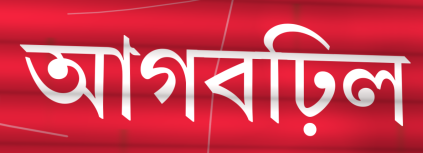
আগবঢ়িল